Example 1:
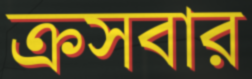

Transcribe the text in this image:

ক্রসবার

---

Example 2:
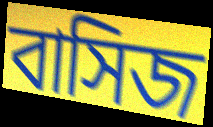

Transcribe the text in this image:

বাসিজ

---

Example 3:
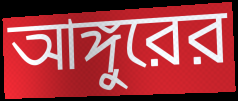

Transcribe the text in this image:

আঙ্গুরের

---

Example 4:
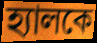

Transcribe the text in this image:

হ্যালকে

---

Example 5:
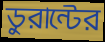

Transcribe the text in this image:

ডুরান্টের